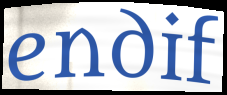
endif